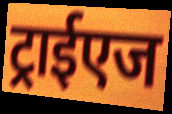
ट्राईएज